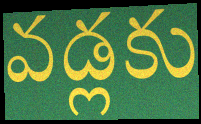
వడ్లకు